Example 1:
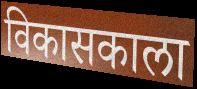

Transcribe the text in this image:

विकासकाला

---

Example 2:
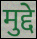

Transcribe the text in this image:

मुद्दे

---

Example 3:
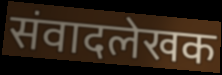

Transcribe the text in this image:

संवादलेखक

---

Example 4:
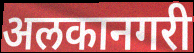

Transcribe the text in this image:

अलकानगरी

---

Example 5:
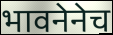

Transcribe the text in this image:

भावनेनेच